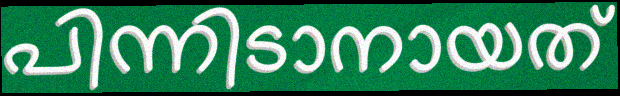
പിന്നിടാനായത്